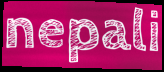
nepali